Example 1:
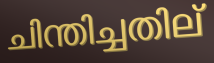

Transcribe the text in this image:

ചിന്തിച്ചതില്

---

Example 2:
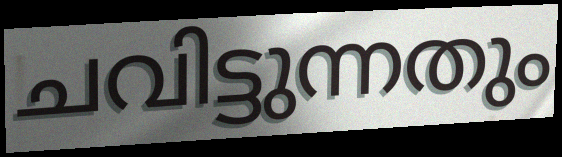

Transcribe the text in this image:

ചവിട്ടുന്നതും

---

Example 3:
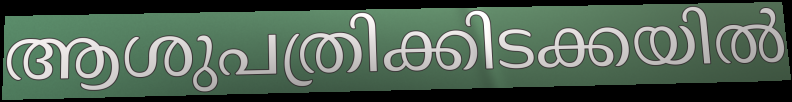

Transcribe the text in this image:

ആശുപത്രിക്കിടക്കയിൽ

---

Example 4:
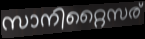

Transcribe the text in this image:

സാനിറ്റൈസര്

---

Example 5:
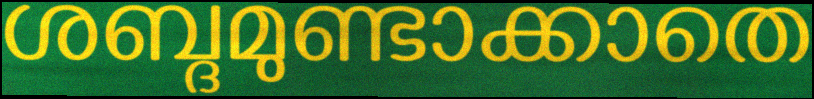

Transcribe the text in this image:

ശബ്ദമുണ്ടാക്കാതെ